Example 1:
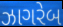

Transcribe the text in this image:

ઝાગરેબ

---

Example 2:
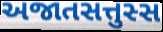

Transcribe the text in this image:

અજાતસત્તુસ્સ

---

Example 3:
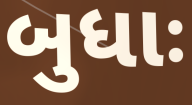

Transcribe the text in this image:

બુધાઃ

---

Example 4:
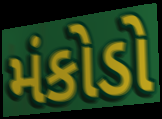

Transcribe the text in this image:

મંકોડો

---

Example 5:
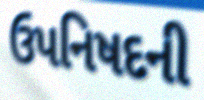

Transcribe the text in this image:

ઉપનિષદની